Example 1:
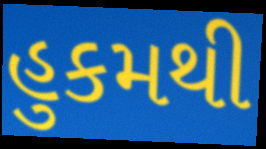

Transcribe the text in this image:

હુકમથી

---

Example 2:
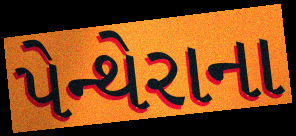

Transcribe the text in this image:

પેન્થેરાના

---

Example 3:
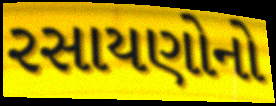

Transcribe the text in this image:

રસાયણોનો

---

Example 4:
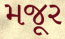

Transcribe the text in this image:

મજૂર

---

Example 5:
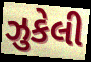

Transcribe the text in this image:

ઝુકેલી